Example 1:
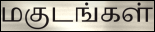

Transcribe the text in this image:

மகுடங்கள்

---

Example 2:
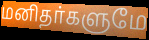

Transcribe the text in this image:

மனிதர்களுமே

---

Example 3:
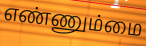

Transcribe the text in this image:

எண்ணும்மை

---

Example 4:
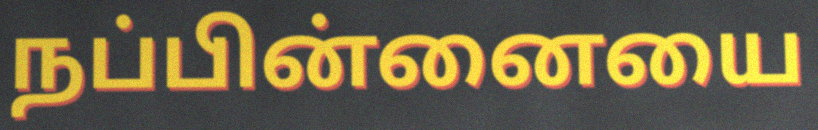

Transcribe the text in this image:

நப்பின்னையை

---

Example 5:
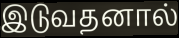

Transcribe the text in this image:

இடுவதனால்